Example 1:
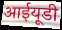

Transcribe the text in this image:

आईयूडी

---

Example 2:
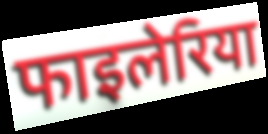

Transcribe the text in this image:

फाइलेरिया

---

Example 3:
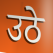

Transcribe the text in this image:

उठे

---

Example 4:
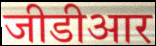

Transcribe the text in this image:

जीडीआर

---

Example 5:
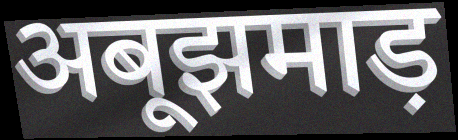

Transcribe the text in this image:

अबूझमाड़